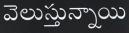
వెలుస్తున్నాయి